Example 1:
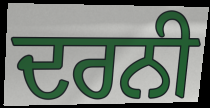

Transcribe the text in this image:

ਦਰਨੀ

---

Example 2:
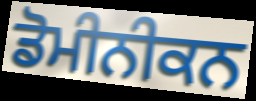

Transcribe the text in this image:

ਡੋਮੀਨੀਕਨ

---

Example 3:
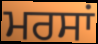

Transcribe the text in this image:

ਮਰਸਾਂ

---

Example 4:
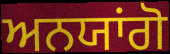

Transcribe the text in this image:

ਅਨਯਾਂਗੋ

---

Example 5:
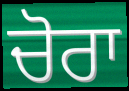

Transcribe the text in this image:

ਚੋਰਾ